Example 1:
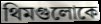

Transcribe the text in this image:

থিমগুলোকে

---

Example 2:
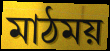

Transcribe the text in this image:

মাঠময়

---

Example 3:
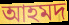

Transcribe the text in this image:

আহমদ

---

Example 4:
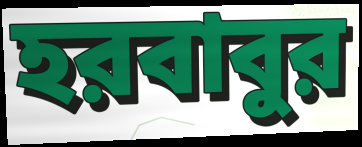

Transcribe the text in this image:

হরবাবুর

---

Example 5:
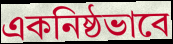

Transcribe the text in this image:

একনিষ্ঠভাবে